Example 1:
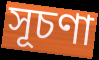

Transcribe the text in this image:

সূচণা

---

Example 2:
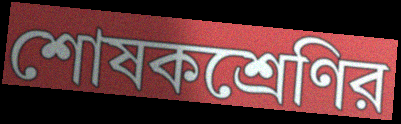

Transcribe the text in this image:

শোষকশ্রেণির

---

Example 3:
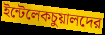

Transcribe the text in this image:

ইন্টেলেকচুয়ালদের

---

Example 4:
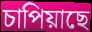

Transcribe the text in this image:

চাপিয়াছে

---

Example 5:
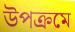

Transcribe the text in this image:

উপক্রমে